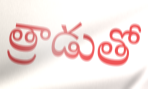
త్రాడుతో